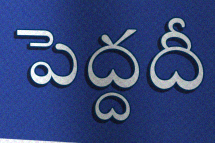
పెద్దదీ